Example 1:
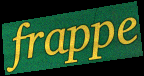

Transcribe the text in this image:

frappe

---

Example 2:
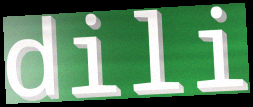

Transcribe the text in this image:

dili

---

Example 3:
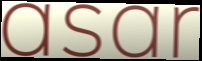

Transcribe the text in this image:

asar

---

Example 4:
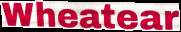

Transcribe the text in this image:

Wheatear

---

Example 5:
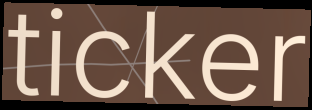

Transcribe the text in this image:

ticker